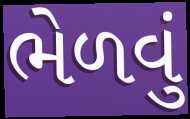
ભેળવું